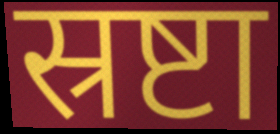
स्रष्टा